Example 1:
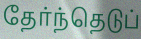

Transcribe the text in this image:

தேர்ந்தெடுப்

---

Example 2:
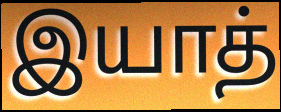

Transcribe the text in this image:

இயாத்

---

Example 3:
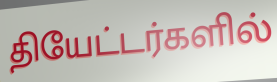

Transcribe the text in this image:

தியேட்டர்களில்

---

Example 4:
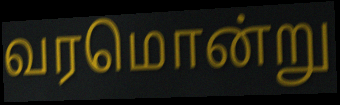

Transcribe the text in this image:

வரமொன்று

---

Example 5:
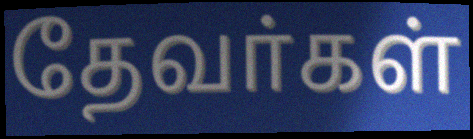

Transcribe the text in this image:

தேவர்கள்